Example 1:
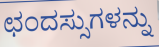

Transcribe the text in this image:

ಛಂದಸ್ಸುಗಳನ್ನು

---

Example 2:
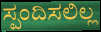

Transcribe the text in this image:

ಸ್ಪಂದಿಸಲಿಲ್ಲ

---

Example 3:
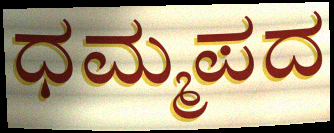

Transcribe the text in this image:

ಧಮ್ಮಪದ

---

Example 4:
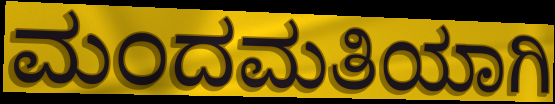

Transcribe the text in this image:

ಮಂದಮತಿಯಾಗಿ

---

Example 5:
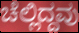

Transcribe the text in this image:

ಚೆಲ್ಲಿದ್ದವು